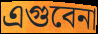
এগুবেনা